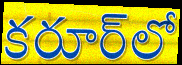
కరూర్‌లో